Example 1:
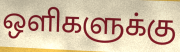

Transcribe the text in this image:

ஒளிகளுக்கு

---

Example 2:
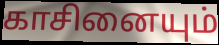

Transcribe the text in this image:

காசினையும்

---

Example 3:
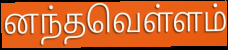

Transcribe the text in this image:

னந்தவெள்ளம்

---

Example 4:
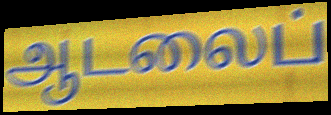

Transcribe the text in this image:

ஆடலைப்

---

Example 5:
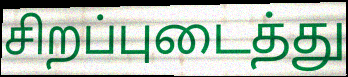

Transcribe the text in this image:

சிறப்புடைத்து